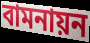
বামনায়ন